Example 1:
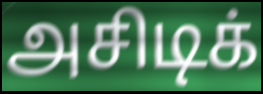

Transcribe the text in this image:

அசிடிக்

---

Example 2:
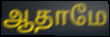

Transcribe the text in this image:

ஆதாமே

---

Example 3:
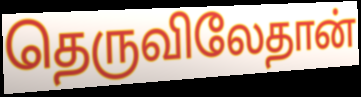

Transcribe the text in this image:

தெருவிலேதான்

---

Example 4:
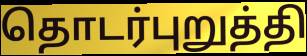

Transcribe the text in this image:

தொடர்புறுத்தி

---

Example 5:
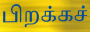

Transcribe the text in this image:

பிறக்கச்